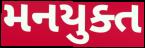
મનયુક્ત